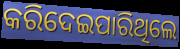
କରିଦେଇପାରିଥିଲେ